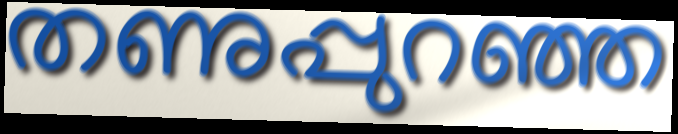
തണുപ്പുറഞ്ഞ